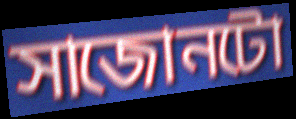
সাজোনটো